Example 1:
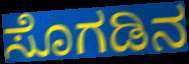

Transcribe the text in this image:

ಸೊಗಡಿನ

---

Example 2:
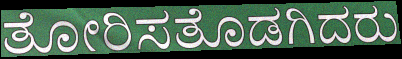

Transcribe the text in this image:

ತೋರಿಸತೊಡಗಿದರು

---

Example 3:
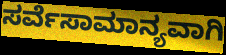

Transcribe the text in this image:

ಸರ್ವೆಸಾಮಾನ್ಯವಾಗಿ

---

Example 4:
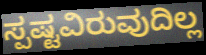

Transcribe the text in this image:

ಸ್ಪಷ್ಟವಿರುವುದಿಲ್ಲ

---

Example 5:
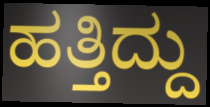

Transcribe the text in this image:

ಹತ್ತಿದ್ದು